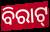
ବିରାଟ୍